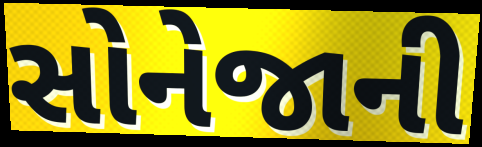
સોનેજાની